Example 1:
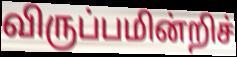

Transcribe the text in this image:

விருப்பமின்றிச்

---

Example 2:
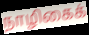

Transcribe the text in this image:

நாழிகைக்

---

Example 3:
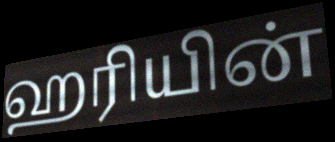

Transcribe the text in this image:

ஹரியின்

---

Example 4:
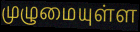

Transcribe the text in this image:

முழுமையுள்ள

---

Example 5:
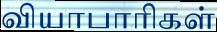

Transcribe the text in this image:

வியாபாரிகள்